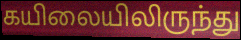
கயிலையிலிருந்து